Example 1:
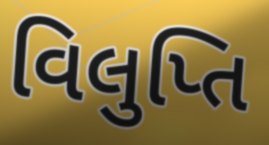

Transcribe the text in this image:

વિલુપ્તિ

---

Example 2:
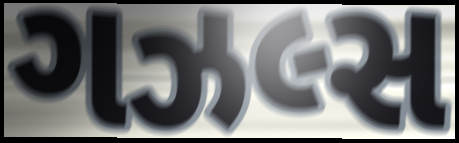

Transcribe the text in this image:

ગઝલ્સ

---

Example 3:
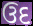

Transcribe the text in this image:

ઉદ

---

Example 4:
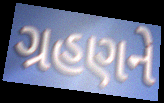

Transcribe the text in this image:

ગ્રહણને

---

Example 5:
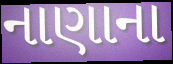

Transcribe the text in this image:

નાણાના